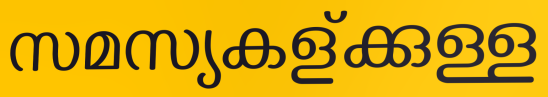
സമസ്യകള്ക്കുള്ള